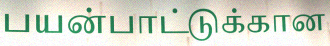
பயன்பாட்டுக்கான